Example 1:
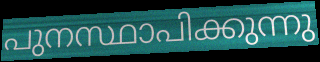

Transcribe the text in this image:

പുനസ്ഥാപിക്കുന്നു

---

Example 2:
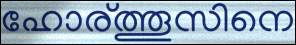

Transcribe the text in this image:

ഹോര്ത്തൂസിനെ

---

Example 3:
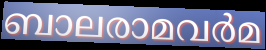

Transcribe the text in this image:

ബാലരാമവർമ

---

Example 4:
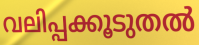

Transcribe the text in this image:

വലിപ്പക്കൂടുതൽ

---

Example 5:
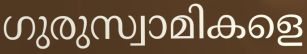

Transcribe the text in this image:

ഗുരുസ്വാമികളെ